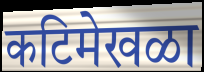
कटिमेखळा